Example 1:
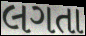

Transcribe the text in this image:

લગતા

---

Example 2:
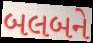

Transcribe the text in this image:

બલબને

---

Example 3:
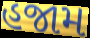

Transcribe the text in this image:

હજામ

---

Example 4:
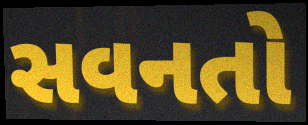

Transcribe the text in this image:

સવનતો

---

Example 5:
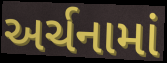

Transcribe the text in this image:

અર્ચનામાં